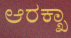
ಆರಕ್ಖಾ